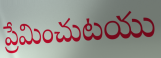
ప్రేమించుటయు